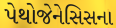
પેથોજેનેસિસના